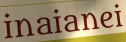
inaianei